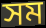
সম